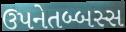
ઉપનેતબ્બસ્સ